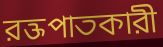
রক্তপাতকারী